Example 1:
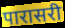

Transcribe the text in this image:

पारासरी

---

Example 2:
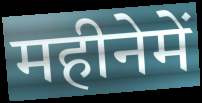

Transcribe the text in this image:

महीनेमें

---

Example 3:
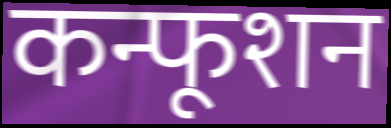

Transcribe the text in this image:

कन्फूशन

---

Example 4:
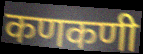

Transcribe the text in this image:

कणकणी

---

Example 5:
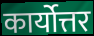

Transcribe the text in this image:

कार्योत्तर